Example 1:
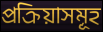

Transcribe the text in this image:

প্ৰক্ৰিয়াসমূহ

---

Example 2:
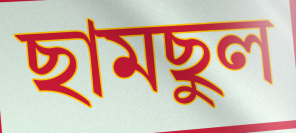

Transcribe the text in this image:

ছামছুল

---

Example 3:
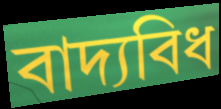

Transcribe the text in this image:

বাদ্যবিধ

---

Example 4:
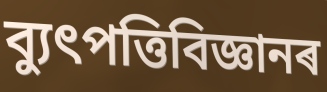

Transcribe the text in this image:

ব্যুৎপত্তিবিজ্ঞানৰ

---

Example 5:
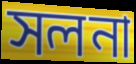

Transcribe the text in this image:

সলনা